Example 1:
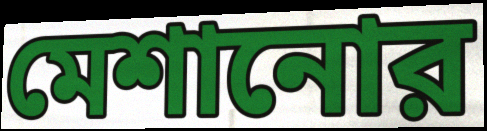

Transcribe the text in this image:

মেশানোর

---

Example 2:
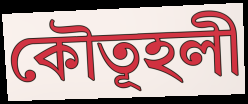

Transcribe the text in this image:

কৌতূহলী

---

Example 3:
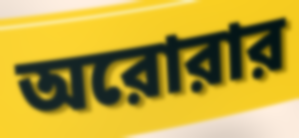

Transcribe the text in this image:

অরোরার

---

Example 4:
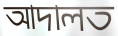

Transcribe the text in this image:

আদালত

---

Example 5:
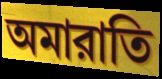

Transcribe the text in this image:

অমারাতি